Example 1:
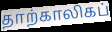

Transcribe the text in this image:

தாற்காலிகப்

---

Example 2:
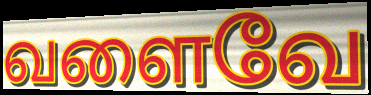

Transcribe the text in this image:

வளைவே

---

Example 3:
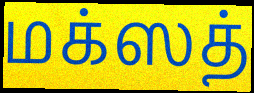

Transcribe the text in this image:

மக்ஸத்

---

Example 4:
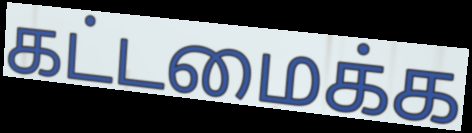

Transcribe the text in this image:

கட்டமைக்க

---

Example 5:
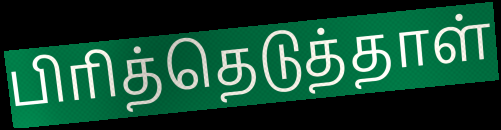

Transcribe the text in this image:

பிரித்தெடுத்தாள்